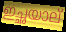
ഇച്ഛയാല്